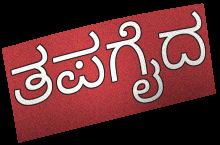
ತಪಗೈದ